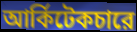
আর্কিটেকচারে